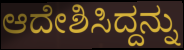
ಆದೇಶಿಸಿದ್ದನ್ನು